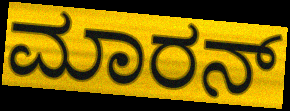
ಮಾರನ್